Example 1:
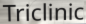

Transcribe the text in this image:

Triclinic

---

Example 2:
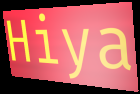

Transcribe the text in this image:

Hiya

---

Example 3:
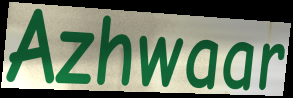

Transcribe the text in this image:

Azhwaar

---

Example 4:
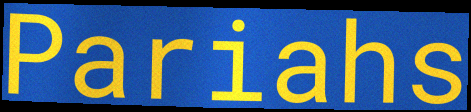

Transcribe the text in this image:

Pariahs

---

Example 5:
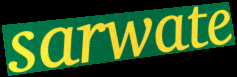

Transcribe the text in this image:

sarwate